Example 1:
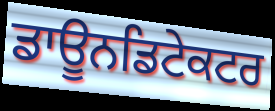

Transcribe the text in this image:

ਡਾਊਨਡਿਟੇਕਟਰ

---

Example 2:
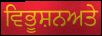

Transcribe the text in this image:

ਵਿਭੂਸ਼ਨਅਤੇ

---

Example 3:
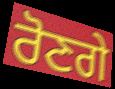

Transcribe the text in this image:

ਰੋਣਗੇ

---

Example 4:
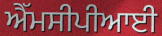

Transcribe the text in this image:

ਐੱਮਸੀਪੀਆਈ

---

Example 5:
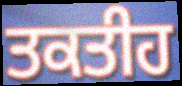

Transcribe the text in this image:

ਤਕਤੀਹ